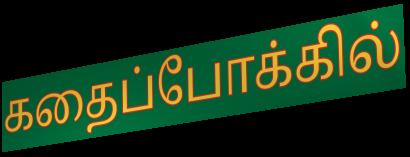
கதைப்போக்கில்